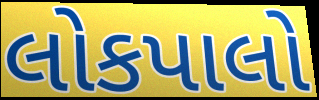
લોકપાલો